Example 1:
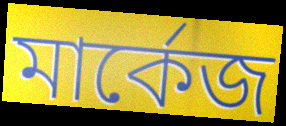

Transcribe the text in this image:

মার্কেজ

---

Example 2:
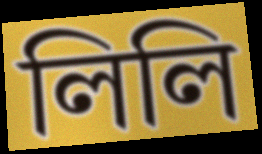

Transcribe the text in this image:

লিলি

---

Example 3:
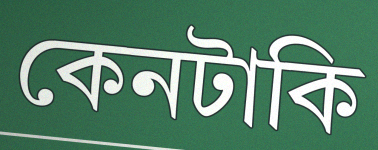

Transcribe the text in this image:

কেনটাকি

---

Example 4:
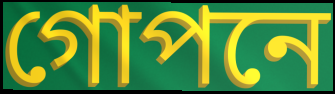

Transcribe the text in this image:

গোপনে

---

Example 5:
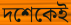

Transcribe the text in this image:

দশেকেই